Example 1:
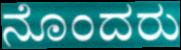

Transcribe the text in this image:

ನೊಂದರು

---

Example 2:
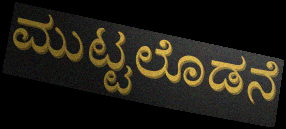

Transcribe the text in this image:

ಮುಟ್ಟಲೊಡನೆ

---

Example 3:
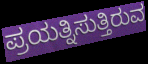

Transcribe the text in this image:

ಪ್ರಯತ್ನಿಸುತ್ತಿರುವ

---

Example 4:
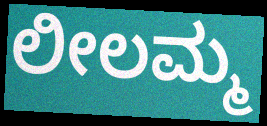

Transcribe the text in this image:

ಲೀಲಮ್ಮ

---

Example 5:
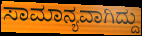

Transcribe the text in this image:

ಸಾಮಾನ್ಯವಾಗಿದ್ದು